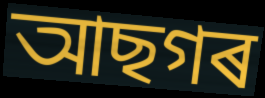
আছগৰ